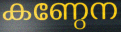
കണ്ഠേന